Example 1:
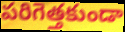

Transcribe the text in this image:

పరిగెత్తకుండా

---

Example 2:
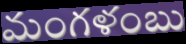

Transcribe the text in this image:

మంగళంబు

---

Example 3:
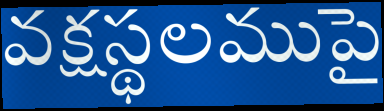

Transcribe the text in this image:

వక్షస్థలముపై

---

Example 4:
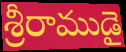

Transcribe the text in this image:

శ్రీరాముడై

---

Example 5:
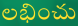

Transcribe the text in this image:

లభించు